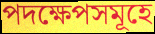
পদক্ষেপসমূহে